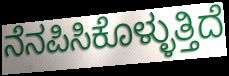
ನೆನಪಿಸಿಕೊಳ್ಳುತ್ತಿದೆ